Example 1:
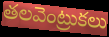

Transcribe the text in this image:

తలవెంట్రుకలు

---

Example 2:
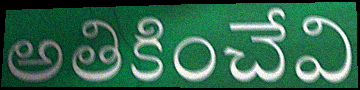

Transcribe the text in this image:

అతికించేవి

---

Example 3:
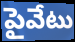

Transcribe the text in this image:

పైవేటు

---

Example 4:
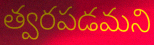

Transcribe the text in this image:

త్వరపడమని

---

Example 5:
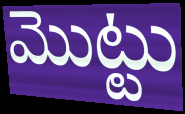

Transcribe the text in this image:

మొట్టు